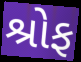
શ્રોફ